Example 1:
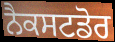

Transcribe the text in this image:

ਨੈਕਸਟਡੋਰ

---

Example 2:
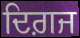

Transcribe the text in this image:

ਦਿਗ਼ਜ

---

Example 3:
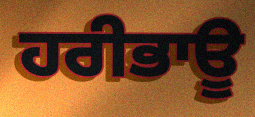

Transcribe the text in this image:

ਹਰੀਭਾਊ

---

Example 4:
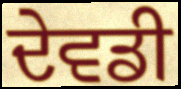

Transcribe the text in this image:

ਦੇਵਡੀ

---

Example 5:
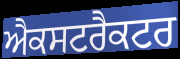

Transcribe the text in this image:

ਐਕਸਟਰੈਕਟਰ